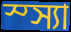
স্স্যা